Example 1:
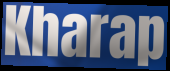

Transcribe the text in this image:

Kharap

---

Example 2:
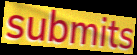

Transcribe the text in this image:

submits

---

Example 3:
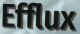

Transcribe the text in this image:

Efflux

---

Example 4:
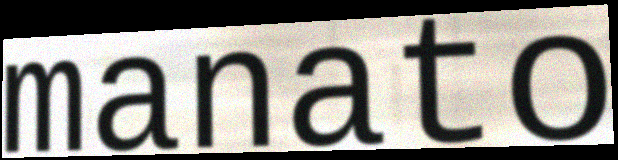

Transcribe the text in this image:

manato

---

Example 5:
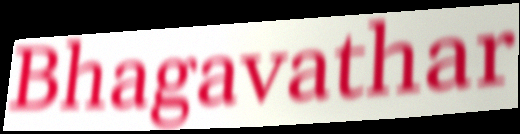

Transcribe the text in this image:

Bhagavathar